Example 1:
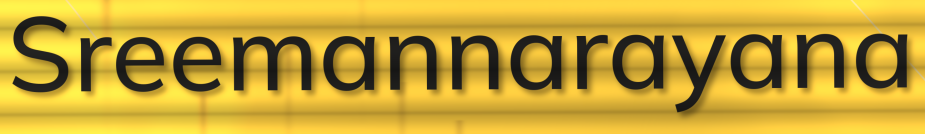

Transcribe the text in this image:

Sreemannarayana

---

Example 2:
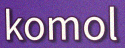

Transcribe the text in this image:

komol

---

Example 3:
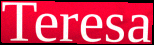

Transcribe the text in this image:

Teresa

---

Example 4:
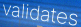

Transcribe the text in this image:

validates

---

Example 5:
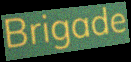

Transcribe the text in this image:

Brigade